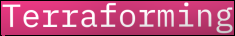
Terraforming